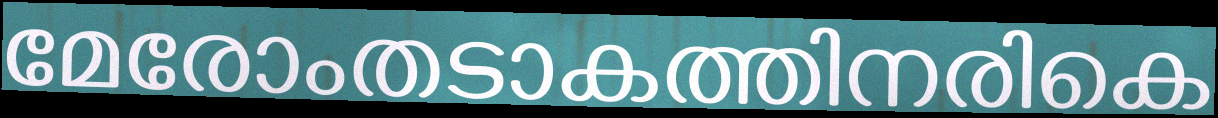
മേരോംതടാകത്തിനരികെ